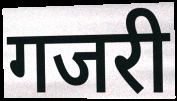
गजरी